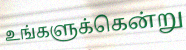
உங்களுக்கென்று